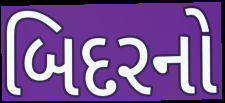
બિદરનો